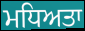
ਮਧਿਅਤਾ